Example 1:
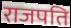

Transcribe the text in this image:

राजपति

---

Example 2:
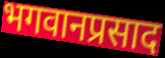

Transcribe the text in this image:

भगवानप्रसाद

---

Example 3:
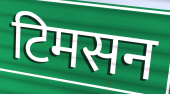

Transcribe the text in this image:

टिमसन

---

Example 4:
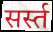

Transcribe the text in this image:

सर्स्त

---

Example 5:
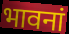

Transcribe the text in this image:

भावनां